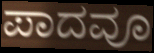
ಪಾದವೂ